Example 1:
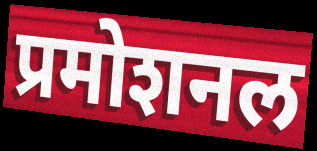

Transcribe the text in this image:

प्रमोशनल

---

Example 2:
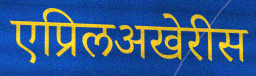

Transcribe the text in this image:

एप्रिलअखेरीस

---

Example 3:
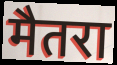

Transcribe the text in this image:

मैतरा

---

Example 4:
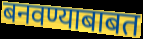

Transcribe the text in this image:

बनवण्याबाबत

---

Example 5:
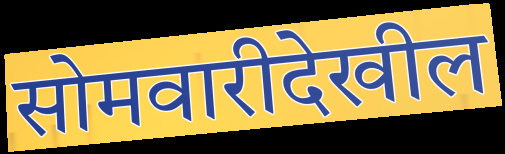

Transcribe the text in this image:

सोमवारीदेखील